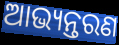
ଆଭ୍ୟନ୍ତରଣ